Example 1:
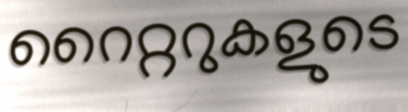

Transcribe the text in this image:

റൈറ്ററുകളുടെ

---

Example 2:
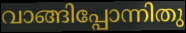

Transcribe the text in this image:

വാങ്ങിപ്പോന്നിതു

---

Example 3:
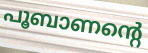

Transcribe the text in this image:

പൂബാണന്റെ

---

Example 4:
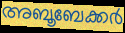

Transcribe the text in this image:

അബൂബേക്കർ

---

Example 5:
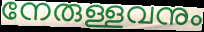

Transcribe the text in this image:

നേരുള്ളവനും